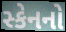
સ્કેનનો